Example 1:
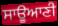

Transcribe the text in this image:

ਸਾਊਆਣੀ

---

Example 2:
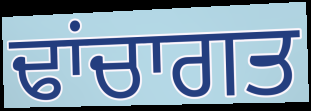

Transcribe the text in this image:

ਢਾਂਚਾਗਤ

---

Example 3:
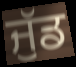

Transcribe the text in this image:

ਜੁੱਡ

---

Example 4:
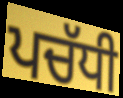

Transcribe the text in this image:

ਪਚੱਧੀ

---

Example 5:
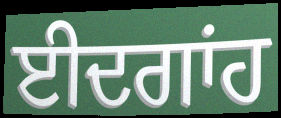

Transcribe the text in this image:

ਈਦਗਾਂਹ